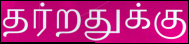
தர்றதுக்கு